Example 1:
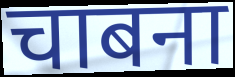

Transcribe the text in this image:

चाबना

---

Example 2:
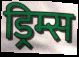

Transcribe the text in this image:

ड्रिम्स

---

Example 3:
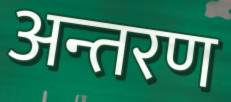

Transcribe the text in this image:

अन्तरण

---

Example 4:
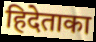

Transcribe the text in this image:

हिदेताका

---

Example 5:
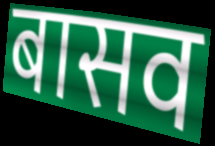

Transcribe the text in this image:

बासव